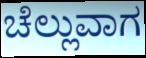
ಚೆಲ್ಲುವಾಗ